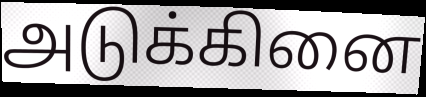
அடுக்கினை